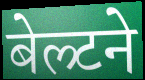
बेल्टने